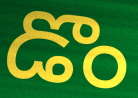
డొం